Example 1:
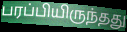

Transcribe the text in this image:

பரப்பியிருந்தது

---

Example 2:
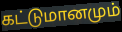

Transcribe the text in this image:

கட்டுமானமும்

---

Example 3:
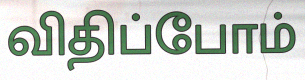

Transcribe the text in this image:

விதிப்போம்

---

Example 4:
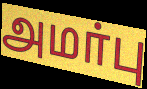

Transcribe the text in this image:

அமர்பு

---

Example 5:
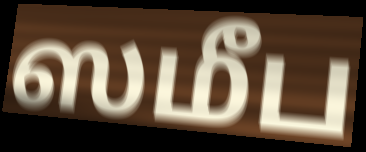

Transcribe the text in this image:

ஸமீப